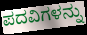
ಪದವಿಗಳನ್ನು